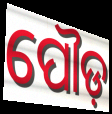
ପୌଡ଼